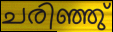
ചരിഞ്ഞു്